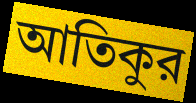
আতিকুর